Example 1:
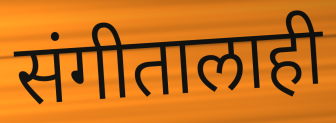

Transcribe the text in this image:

संगीतालाही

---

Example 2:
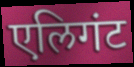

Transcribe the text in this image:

एलिगंट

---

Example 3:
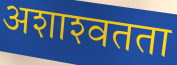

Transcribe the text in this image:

अशाश्वतता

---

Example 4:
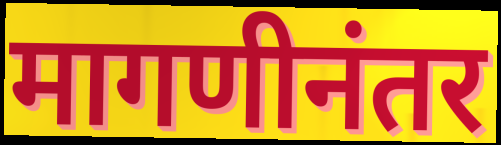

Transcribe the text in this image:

मागणीनंतर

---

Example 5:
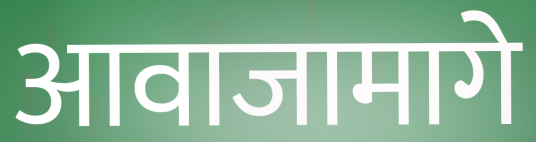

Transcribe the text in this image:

आवाजामागे